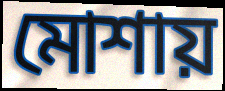
মোশায়